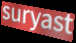
suryast